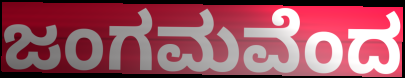
ಜಂಗಮವೆಂದ